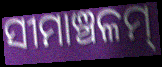
ସୀମାଞ୍ଚଳମ୍